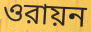
ওরায়ন